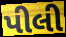
પીલી